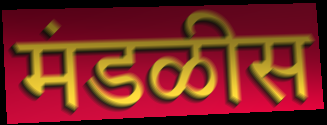
मंडळीस